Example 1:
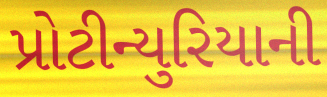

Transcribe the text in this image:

પ્રોટીન્યુરિયાની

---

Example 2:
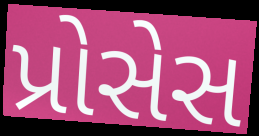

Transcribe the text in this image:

પ્રોસેસ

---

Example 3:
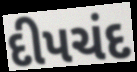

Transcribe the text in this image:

દીપચંદ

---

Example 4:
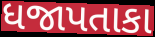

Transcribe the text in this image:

ધજાપતાકા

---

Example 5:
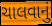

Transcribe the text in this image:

ચાલવાનું